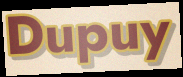
Dupuy